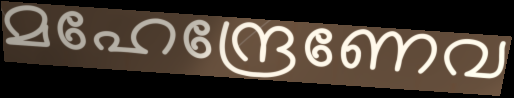
മഹേന്ദ്രേണേവ